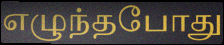
எழுந்தபோது